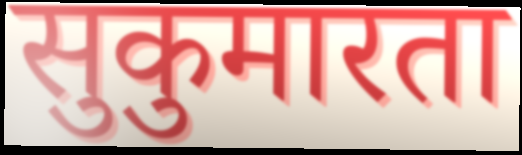
सुकुमारता